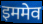
इममेव